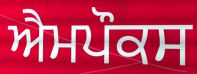
ਐਮਪੌਕਸ